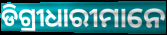
ଡିଗ୍ରୀଧାରୀମାନେ